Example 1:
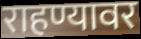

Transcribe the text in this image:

राहण्यावर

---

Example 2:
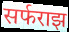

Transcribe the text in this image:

सर्फराझ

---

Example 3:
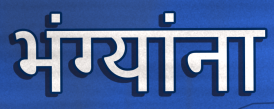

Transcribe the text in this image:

भंग्यांना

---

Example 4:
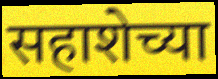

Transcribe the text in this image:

सहाशेच्या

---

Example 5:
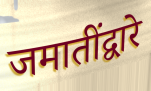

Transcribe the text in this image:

जमातींद्वारे